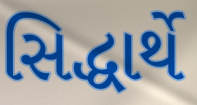
સિદ્ધાર્થે